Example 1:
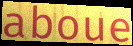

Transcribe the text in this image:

aboue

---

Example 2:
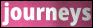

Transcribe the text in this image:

journeys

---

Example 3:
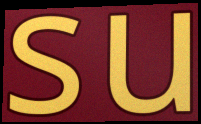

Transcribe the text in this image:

su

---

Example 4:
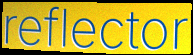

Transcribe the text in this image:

reflector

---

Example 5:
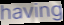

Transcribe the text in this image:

having